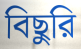
বিছুরি